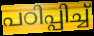
പഠിപ്പിച്ച്